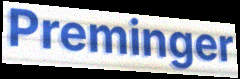
Preminger